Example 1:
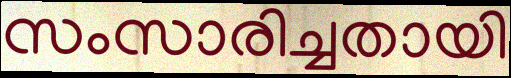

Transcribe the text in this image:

സംസാരിച്ചതായി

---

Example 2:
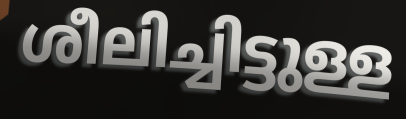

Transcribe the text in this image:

ശീലിച്ചിട്ടുള്ള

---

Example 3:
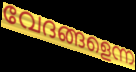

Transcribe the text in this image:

വേദങ്ങളെന്ന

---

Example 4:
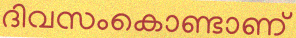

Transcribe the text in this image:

ദിവസംകൊണ്ടാണ്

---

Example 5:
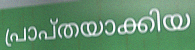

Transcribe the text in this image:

പ്രാപ്തയാക്കിയ